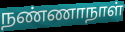
நண்ணாநாள்